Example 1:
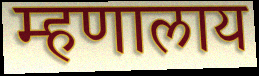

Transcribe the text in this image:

म्हणालाय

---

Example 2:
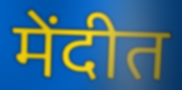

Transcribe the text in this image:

मेंदीत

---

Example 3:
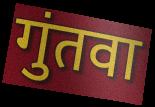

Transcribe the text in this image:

गुंतवा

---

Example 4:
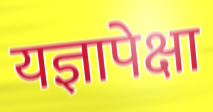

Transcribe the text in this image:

यज्ञापेक्षा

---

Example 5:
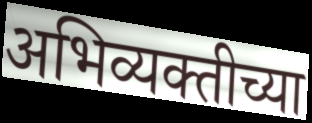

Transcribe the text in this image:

अभिव्यक्तीच्या